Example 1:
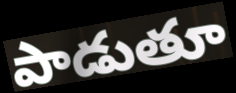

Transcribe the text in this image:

పాడుతూ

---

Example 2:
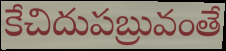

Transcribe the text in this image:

కేచిదుపబ్రువంతే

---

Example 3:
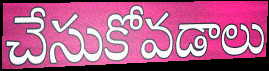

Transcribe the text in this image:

చేసుకోవడాలు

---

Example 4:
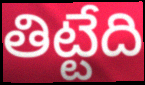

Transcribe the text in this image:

తిట్టేది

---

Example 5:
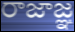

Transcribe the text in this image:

రాజాజ్ఞ